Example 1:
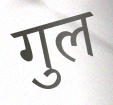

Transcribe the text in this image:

गुल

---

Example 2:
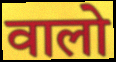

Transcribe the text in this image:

वालो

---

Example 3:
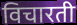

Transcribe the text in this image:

विचारती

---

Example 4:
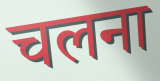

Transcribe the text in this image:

चलना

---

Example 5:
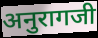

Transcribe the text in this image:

अनुरागजी